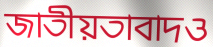
জাতীয়তাবাদও